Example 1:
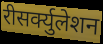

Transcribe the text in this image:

रीसर्क्युलेशन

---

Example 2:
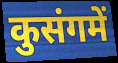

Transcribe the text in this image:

कुसंगमें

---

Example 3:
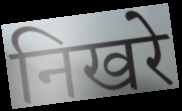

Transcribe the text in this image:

निखरे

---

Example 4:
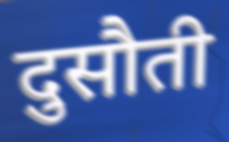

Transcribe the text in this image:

दुसौती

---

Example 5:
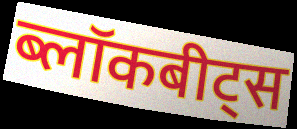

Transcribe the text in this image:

ब्लॉकबीट्स